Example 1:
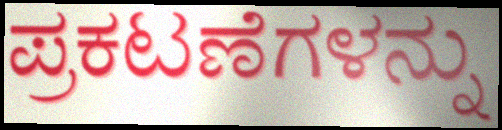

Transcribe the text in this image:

ಪ್ರಕಟಣೆಗಳನ್ನು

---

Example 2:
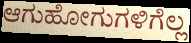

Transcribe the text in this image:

ಆಗುಹೋಗುಗಳಿಗೆಲ್ಲ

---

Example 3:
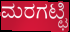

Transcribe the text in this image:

ಮರಗಟ್ಟಿ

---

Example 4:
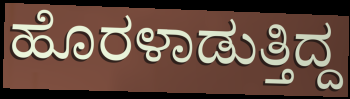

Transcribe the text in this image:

ಹೊರಳಾಡುತ್ತಿದ್ದ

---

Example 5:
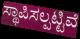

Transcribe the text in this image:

ಸ್ಥಾಪಿಸಲ್ಪಟ್ಟಿವೆ